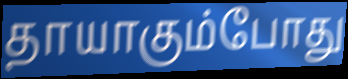
தாயாகும்போது